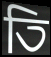
তি